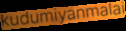
kudumiyanmalai